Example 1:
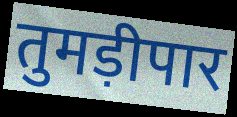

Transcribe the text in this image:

तुमड़ीपार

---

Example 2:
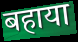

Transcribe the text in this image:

बहाया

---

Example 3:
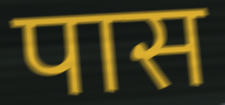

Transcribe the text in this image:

पास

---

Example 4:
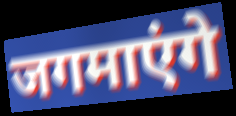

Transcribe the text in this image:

जगमाएंगे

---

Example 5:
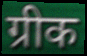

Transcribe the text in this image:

ग्रीक